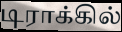
டிராக்கில்